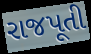
રાજપૂતી